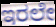
ಇರಲೇ